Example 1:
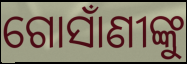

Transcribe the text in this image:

ଗୋସାଁଣୀଙ୍କୁ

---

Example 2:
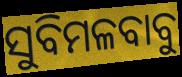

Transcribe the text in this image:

ସୁବିମଳବାବୁ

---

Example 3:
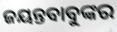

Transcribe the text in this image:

ଜୟନ୍ତବାବୁଙ୍କର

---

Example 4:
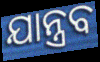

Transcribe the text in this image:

ଯାନ୍ତ୍ରବ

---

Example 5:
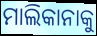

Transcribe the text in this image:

ମାଲିକାନାକୁ